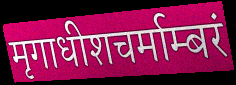
मृगाधीशचर्माम्बरं